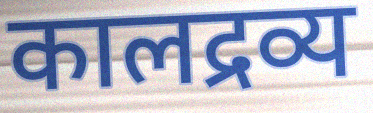
कालद्रव्य